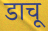
डाचू